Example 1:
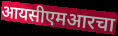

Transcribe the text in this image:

आयसीएमआरचा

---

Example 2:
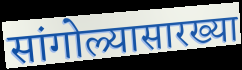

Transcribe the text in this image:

सांगोल्यासारख्या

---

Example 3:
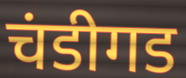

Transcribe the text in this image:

चंडीगड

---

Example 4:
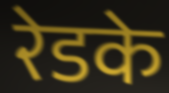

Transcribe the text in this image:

रेडके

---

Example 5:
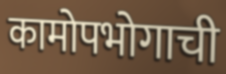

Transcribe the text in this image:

कामोपभोगाची